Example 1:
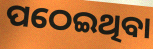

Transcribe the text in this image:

ପଠେଇଥିବା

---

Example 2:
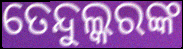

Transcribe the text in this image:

ତେନ୍ଦୁଲ୍କରଙ୍କ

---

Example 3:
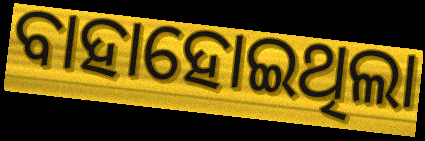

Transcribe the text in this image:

ବାହାହୋଇଥିଲା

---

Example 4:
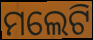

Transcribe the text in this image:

ମଲେଟି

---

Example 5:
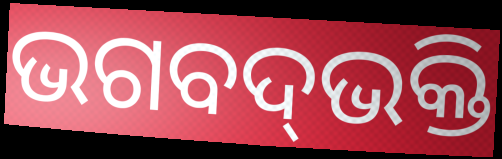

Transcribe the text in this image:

ଭଗବଦ୍‌ଭକ୍ତି